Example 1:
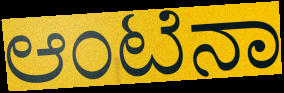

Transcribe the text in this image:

ಆಂಟೆನಾ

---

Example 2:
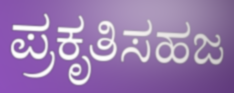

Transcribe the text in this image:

ಪ್ರಕೃತಿಸಹಜ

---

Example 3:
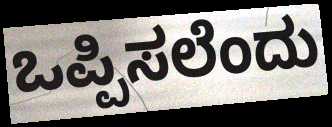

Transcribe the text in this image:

ಒಪ್ಪಿಸಲೆಂದು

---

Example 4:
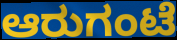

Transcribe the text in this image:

ಆರುಗಂಟೆ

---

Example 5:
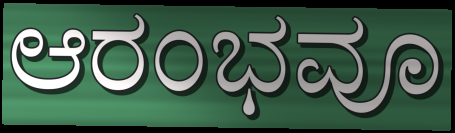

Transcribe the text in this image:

ಆರಂಭವೂ